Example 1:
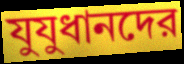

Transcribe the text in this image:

যুযুধানদের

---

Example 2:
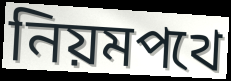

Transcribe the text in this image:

নিয়মপথে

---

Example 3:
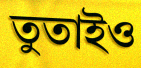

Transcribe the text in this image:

তুতাইও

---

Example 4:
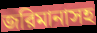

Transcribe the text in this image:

জরিমানাসহ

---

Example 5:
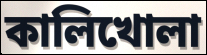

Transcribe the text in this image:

কালিখোলা